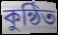
কুন্ঠিত